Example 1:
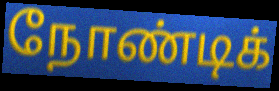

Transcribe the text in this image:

நோண்டிக்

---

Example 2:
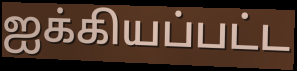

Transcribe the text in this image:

ஐக்கியப்பட்ட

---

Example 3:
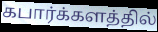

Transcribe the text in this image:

கபார்க்களத்தில்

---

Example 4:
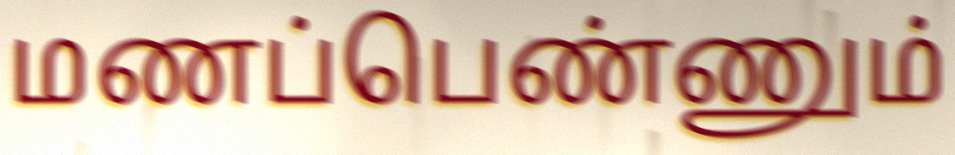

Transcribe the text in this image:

மணப்பெண்ணும்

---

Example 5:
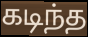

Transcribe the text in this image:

கடிந்த